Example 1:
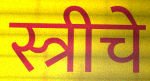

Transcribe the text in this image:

स्त्रीचे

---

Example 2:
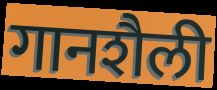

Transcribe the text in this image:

गानशैली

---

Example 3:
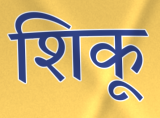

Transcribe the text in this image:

शिकू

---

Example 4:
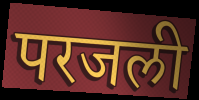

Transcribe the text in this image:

परजली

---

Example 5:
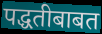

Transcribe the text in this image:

पद्धतीबाबत